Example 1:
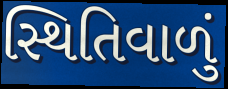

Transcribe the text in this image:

સ્થિતિવાળું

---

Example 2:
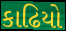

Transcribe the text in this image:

કાઢિયો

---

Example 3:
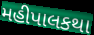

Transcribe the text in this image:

મહીપાલકથા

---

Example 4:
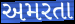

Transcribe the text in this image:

અમરતા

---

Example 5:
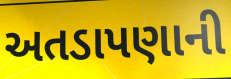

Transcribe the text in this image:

અતડાપણાની